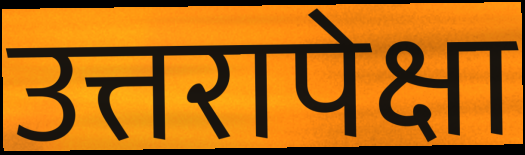
उत्तरापेक्षा